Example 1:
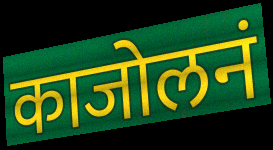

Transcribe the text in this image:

काजोलनं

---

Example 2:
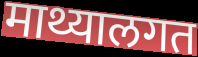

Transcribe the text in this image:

माथ्यालगत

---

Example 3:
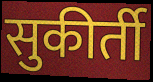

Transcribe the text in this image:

सुकीर्ती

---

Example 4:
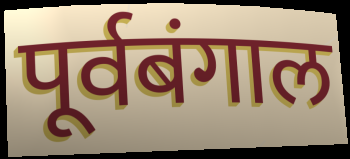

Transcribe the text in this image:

पूर्वबंगाल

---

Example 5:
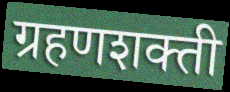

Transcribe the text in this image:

ग्रहणशक्ती